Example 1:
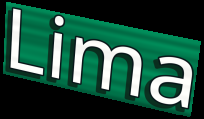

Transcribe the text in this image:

Lima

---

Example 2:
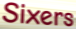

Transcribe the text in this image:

Sixers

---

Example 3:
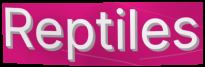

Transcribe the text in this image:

Reptiles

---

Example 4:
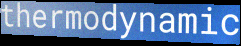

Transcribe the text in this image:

thermodynamic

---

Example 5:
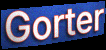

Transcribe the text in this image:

Gorter